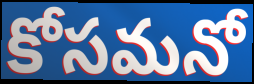
కోసమనో